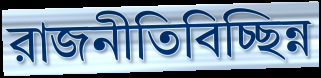
রাজনীতিবিচ্ছিন্ন